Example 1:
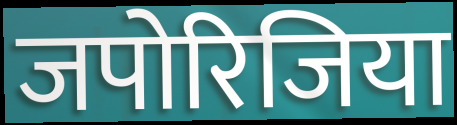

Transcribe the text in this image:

जपोरिजिया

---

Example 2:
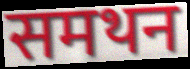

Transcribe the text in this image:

समथन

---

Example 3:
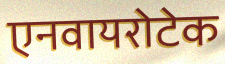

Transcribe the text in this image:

एनवायरोटेक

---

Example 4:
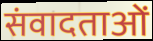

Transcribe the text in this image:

संवादताओं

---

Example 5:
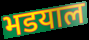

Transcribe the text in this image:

भडयाल